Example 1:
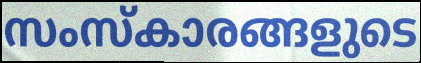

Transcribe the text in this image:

സംസ്കാരങ്ങളുടെ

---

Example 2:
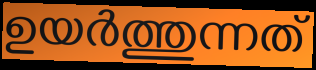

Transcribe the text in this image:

ഉയർത്തുന്നത്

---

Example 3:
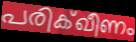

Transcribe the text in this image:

പരിക്ഖീണം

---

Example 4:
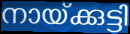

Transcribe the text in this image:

നായ്‌ക്കുട്ടി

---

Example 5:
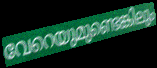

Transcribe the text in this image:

വേറെയുമുണ്ടെങ്കിലും